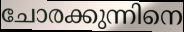
ചോരക്കുന്നിനെ